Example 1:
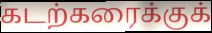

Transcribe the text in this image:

கடற்கரைக்குக்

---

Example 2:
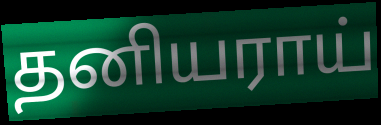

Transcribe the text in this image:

தனியராய்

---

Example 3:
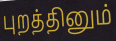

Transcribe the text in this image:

புறத்தினும்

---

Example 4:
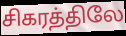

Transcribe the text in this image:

சிகரத்திலே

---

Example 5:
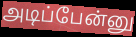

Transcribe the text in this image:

அடிப்பேன்னு